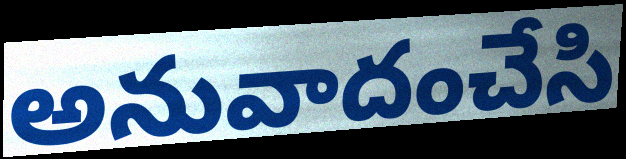
అనువాదంచేసి